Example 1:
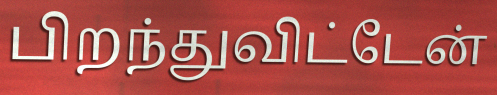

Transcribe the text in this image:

பிறந்துவிட்டேன்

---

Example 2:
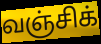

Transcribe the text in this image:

வஞ்சிக்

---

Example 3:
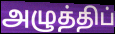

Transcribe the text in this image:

அழுத்திப்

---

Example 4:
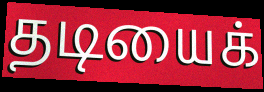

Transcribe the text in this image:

தடியைக்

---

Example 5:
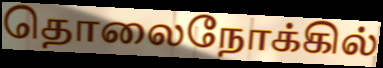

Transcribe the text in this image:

தொலைநோக்கில்